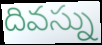
దివస్ను